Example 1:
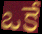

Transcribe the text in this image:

ఒకే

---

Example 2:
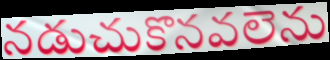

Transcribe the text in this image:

నడుచుకొనవలెను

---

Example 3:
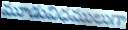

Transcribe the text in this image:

మూడువిధములుగా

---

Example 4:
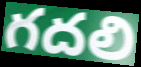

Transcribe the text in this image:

గదలి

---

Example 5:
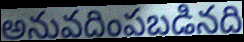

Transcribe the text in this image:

అనువదింపబడినది